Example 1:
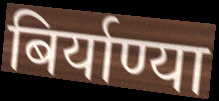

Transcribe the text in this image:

बिर्याण्या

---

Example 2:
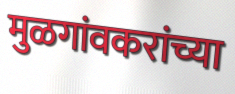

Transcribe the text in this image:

मुळगांवकरांच्या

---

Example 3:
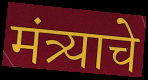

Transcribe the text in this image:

मंत्र्याचे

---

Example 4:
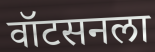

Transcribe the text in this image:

वॉटसनला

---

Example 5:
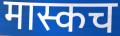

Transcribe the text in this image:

मास्कच